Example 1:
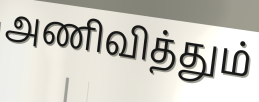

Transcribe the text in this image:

அணிவித்தும்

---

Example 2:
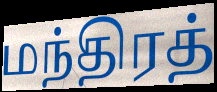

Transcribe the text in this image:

மந்திரத்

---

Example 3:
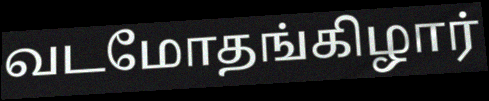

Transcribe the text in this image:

வடமோதங்கிழார்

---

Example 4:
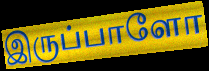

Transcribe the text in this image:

இருப்பாளோ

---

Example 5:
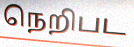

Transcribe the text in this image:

நெறிபட